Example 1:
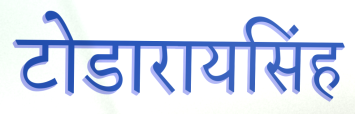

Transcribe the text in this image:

टोडारायसिंह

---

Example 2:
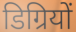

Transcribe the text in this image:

डिग्रियों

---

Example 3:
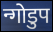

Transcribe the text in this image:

न्गोडुप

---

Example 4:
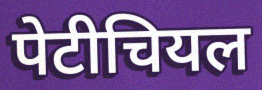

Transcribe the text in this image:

पेटीचियल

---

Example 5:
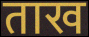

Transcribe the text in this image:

ताख